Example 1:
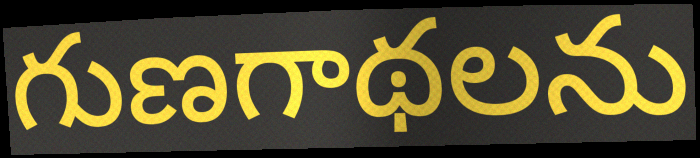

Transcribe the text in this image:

గుణగాథలను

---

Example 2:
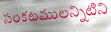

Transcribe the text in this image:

సంకటములన్నిటిని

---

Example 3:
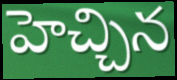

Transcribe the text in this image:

హెచ్చిన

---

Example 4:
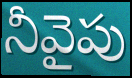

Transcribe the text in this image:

నీవైపు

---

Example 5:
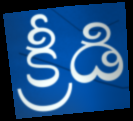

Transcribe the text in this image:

క్రీడి